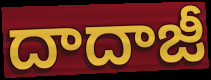
దాదాజీ